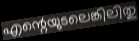
എന്റെയുടലെങ്കിലിതു